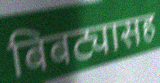
बिबट्यासह